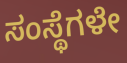
ಸಂಸ್ಥೆಗಳೇ